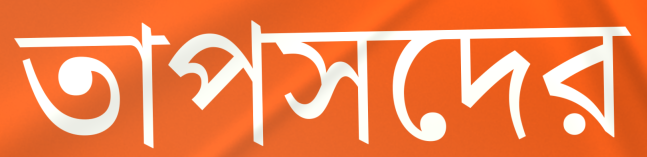
তাপসদের